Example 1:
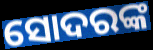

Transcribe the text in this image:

ସୋଦରଙ୍କ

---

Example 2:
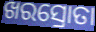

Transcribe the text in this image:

ଖରସ୍ରୋତା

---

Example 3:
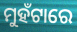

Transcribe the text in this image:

ମୁହଁଟାରେ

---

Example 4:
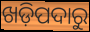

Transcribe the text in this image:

ଖଡ଼ିପଦାରୁ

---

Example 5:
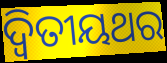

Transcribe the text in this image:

ଦ୍ବିତୀୟଥର